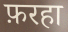
फ़रहा